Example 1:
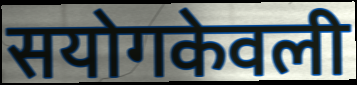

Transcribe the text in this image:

सयोगकेवली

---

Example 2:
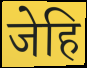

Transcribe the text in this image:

जेहि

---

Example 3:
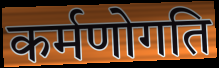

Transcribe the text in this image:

कर्मणोगति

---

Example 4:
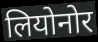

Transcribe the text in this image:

लियोनोर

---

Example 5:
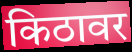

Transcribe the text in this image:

किठावर